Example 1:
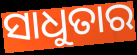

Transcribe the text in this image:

ସାଧୁତାର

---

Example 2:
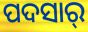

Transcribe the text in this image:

ପଦସାର୍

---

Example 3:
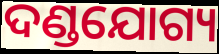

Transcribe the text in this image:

ଦଣ୍ଡଯୋଗ୍ୟ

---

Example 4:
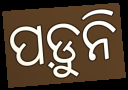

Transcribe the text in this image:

ପଡ଼ୁନି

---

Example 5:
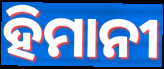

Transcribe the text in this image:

ହିମାନୀ